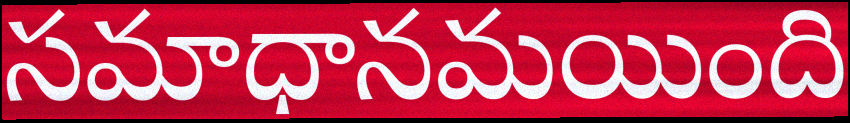
సమాధానమయింది